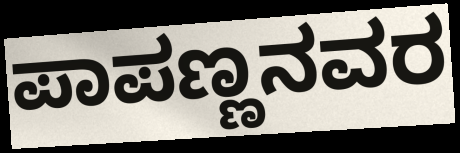
ಪಾಪಣ್ಣನವರ